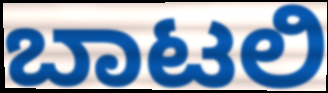
ಬಾಟಲಿ